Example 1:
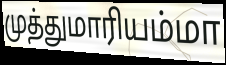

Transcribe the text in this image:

முத்துமாரியம்மா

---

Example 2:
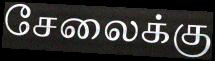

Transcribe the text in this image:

சேலைக்கு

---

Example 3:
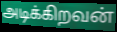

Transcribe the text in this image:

அடிக்கிறவன்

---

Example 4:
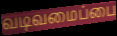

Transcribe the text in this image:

வடிவமைப்பை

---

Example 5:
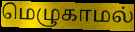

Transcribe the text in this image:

மெழுகாமல்